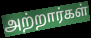
அற்றார்கள்